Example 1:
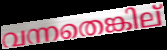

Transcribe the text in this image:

വന്നതെങ്കില്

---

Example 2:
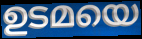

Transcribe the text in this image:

ഉടമയെ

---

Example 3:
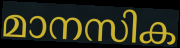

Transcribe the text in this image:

മാനസിക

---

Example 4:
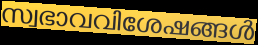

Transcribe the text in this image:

സ്വഭാവവിശേഷങ്ങൾ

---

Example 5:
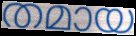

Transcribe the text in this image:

തമായ